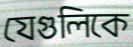
যেগুলিকে